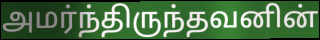
அமர்ந்திருந்தவனின்